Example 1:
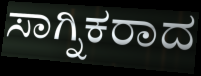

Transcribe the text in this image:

ಸಾಗ್ನಿಕರಾದ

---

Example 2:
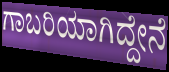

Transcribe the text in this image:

ಗಾಬರಿಯಾಗಿದ್ದೇನೆ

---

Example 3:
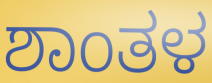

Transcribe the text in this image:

ಶಾಂತಳ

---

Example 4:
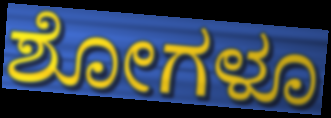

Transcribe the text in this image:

ಶೋಗಳೂ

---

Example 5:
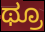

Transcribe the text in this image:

ಥ್ರೂ